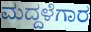
ಮದ್ದಳೆಗಾರ